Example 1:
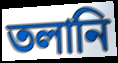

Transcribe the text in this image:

তলানি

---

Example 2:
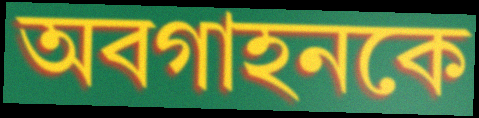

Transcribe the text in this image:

অবগাহনকে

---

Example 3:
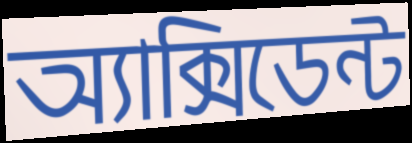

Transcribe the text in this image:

অ্যাক্সিডেন্ট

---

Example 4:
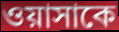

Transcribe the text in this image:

ওয়াসাকে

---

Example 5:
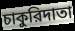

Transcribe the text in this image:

চাকুরিদাতা